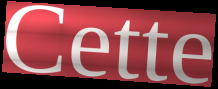
Cette